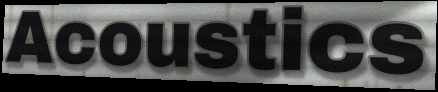
Acoustics